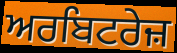
ਅਰਬਿਟਰੇਜ਼